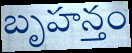
బృహన్తం